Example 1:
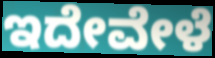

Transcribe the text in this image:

ಇದೇವೇಳೆ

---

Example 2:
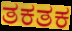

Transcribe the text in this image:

ತಕತಕ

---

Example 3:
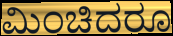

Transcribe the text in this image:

ಮಿಂಚಿದರೂ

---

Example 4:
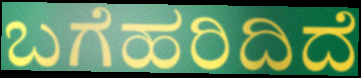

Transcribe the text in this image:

ಬಗೆಹರಿದಿದೆ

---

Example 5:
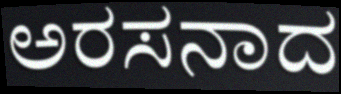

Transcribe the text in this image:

ಅರಸನಾದ